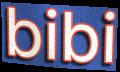
bibi